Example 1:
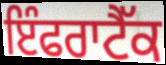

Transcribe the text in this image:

ਇੰਫਰਾਟੈੱਕ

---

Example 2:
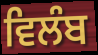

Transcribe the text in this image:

ਵਿਲੰਬ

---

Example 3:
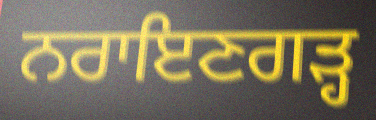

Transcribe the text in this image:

ਨਰਾਇਣਗੜ੍ਹ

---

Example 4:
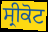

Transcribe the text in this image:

ਸ੍ਰੀਕੋਟ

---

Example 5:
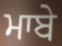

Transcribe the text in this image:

ਮਾਬੇ